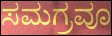
ಸಮಗ್ರವೂ